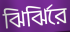
ঝির্ঝিরে